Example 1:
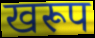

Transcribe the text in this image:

खरूप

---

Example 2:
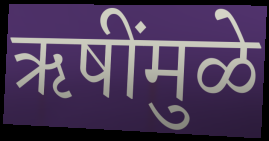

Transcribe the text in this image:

ऋषींमुळे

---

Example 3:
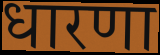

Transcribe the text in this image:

धारणा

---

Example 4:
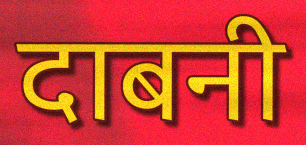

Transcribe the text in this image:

दाबनी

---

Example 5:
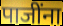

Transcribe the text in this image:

पाजींना